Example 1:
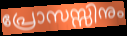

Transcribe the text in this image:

പ്രോസസ്സിനും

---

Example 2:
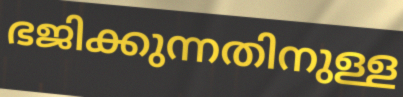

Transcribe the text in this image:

ഭജിക്കുന്നതിനുള്ള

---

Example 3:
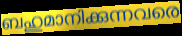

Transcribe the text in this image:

ബഹുമാനിക്കുന്നവരെ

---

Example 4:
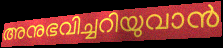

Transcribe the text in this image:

അനുഭവിച്ചറിയുവാൻ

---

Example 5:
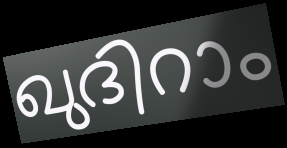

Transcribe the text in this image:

ഖുദിറാം